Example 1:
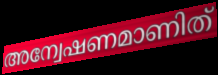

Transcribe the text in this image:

അന്വേഷണമാണിത്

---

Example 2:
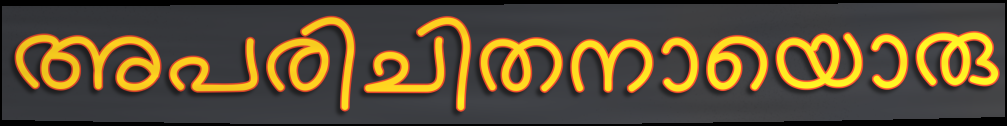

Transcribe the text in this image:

അപരിചിതനായൊരു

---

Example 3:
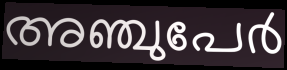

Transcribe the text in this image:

അഞ്ചുപേർ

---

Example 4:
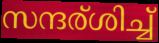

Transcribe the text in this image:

സന്ദര്ശിച്ച്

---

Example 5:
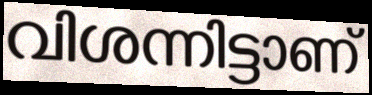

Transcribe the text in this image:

വിശന്നിട്ടാണ്